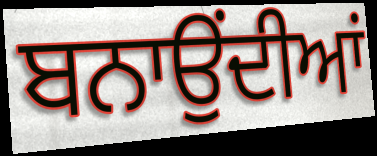
ਬਨਾਉਂਦੀਆਂ